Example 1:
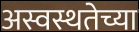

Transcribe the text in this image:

अस्वस्थतेच्या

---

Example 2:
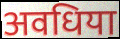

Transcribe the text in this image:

अवधिया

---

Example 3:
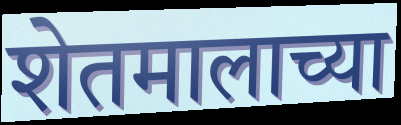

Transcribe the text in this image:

शेतमालाच्या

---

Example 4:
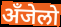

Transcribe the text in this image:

अँजेलो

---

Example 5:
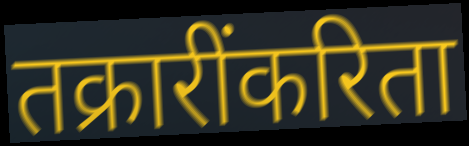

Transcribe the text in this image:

तक्रारींकरिता